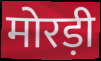
मोरड़ी